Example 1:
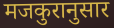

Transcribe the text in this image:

मजकुरानुसार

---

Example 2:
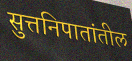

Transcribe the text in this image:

सुत्तनिपातांतील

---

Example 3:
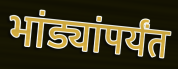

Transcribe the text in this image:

भांड्यांपर्यंत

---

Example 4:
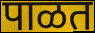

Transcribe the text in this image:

पाळत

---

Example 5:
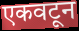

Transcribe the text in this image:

एकवटून